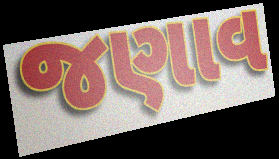
જણાવ